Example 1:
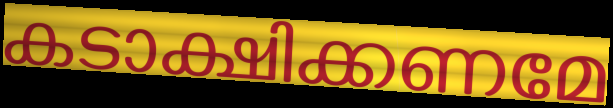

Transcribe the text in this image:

കടാക്ഷിക്കണമേ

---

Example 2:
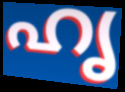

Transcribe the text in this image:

ഹൃ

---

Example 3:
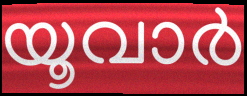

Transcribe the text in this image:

യൂവാർ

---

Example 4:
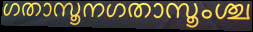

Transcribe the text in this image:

ഗതാസൂനഗതാസൂംശ്ച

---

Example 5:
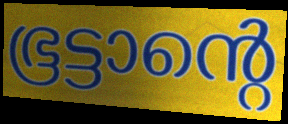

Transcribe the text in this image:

ഭൂട്ടാന്റെ